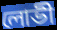
লোভী